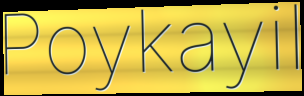
Poykayil